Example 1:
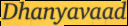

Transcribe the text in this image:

Dhanyavaad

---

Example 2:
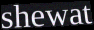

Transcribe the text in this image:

shewat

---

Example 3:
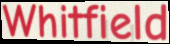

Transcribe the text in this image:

Whitfield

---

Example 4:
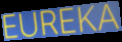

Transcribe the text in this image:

EUREKA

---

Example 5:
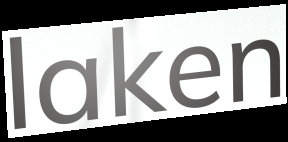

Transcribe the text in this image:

laken